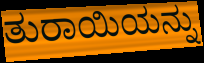
ತುರಾಯಿಯನ್ನು